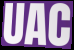
UAC